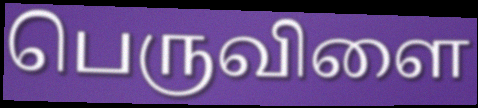
பெருவிளை